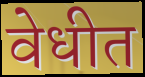
वेधीत